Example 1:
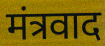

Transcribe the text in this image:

मंत्रवाद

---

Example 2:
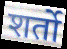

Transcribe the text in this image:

शर्तो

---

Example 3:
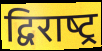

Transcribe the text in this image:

द्विराष्ट्र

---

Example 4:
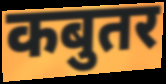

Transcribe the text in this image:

कबुतर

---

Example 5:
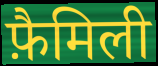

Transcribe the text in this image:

फ़ैमिली